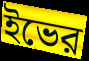
ইভের